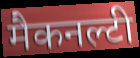
मैकनल्टी